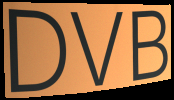
DVB